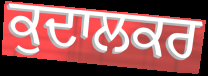
ਕੁਦਾਲਕਰ